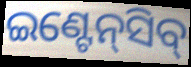
ଇଣ୍ଟେନ୍‍ସିବ୍